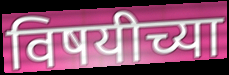
विषयीच्या